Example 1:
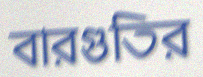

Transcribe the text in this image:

বারগুতির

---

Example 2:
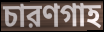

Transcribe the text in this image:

চারণগাহ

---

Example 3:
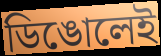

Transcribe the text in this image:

ডিঙোলেই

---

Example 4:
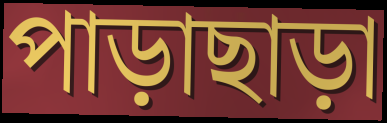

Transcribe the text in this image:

পাড়াছাড়া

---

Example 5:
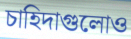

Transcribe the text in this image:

চাহিদাগুলোও